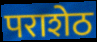
पराशेठ